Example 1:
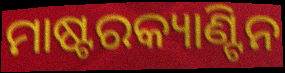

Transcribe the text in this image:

ମାଷ୍ଟରକ୍ୟାଣ୍ଟିନ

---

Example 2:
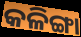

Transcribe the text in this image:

କଳିଙ୍ଗା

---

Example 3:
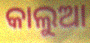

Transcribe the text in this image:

କାଲୁଆ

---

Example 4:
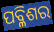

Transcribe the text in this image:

ପବ୍ଳିଶର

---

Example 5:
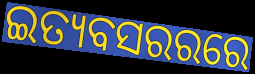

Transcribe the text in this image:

ଇତ୍ୟବସରରରେ